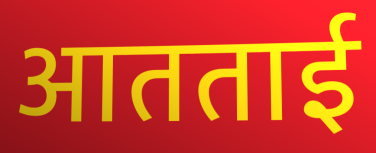
आतताई